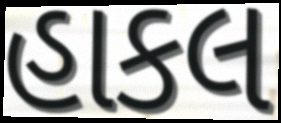
હાકલ